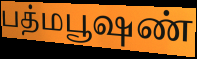
பத்மபூஷண்